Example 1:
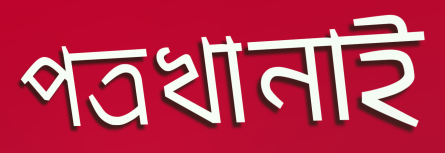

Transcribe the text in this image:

পত্রখানাই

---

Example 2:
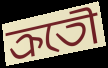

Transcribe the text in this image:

ক্রতৌ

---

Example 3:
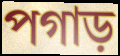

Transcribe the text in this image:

পগাড়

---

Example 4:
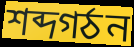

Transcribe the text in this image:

শব্দগঠন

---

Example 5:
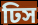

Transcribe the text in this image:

ঢিস